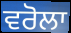
ਵਰੋਲਾ